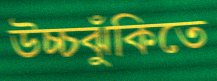
উচ্চঝুঁকিতে